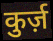
कुर्ज़